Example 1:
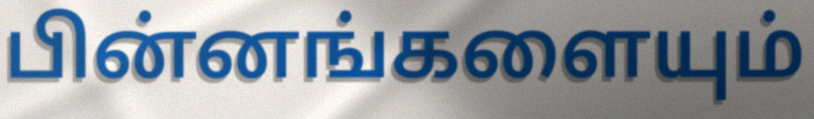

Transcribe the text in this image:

பின்னங்களையும்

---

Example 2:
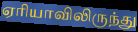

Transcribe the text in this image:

ஏரியாவிலிருந்து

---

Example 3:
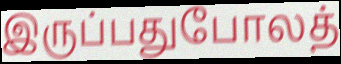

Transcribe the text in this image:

இருப்பதுபோலத்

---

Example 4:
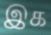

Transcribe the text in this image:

இக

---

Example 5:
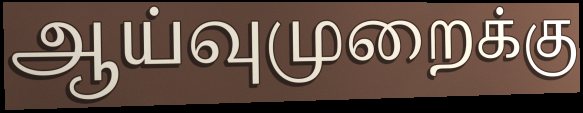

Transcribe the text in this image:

ஆய்வுமுறைக்கு